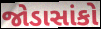
જોડાસાંકો